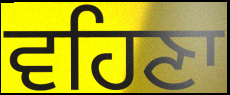
ਵਹਿਣਾ